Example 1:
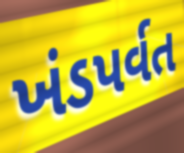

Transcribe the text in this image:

ખંડપર્વત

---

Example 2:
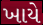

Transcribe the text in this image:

ખાયે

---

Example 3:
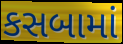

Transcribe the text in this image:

કસબામાં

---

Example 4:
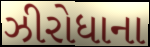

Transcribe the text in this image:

ઝીરોધાના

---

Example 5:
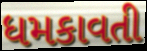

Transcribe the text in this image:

ધમકાવતી